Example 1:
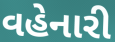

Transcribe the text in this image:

વહેનારી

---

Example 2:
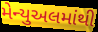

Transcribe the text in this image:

મેન્યુઅલમાંથી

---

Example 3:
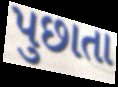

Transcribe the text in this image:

પુછાતા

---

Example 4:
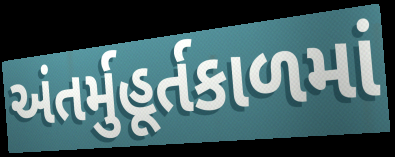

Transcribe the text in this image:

અંતર્મુહૂર્તકાળમાં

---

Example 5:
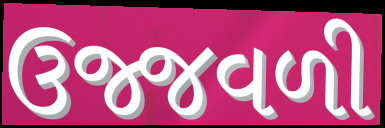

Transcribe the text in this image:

ઉજ્જવળી